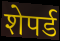
शेपर्ड